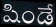
షిండే